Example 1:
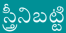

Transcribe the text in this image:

స్త్రీనిబట్టి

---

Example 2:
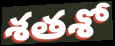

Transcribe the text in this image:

శతశో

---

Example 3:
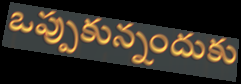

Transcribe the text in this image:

ఒప్పుకున్నందుకు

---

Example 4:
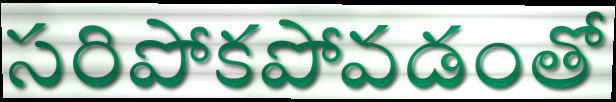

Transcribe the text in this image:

సరిపోకపోవడంతో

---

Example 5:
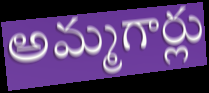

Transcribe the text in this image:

అమ్మగార్లు